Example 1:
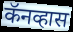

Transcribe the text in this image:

कॅनव्हास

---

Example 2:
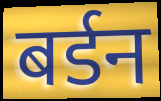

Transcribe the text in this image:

बर्डन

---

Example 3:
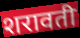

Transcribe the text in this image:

शरावती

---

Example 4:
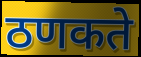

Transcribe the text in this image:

ठणकते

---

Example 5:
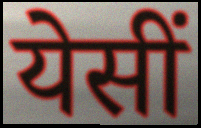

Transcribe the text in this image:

येसीं